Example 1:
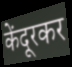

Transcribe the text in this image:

केंदूरकर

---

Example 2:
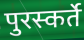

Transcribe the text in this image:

पुरस्कर्ते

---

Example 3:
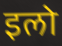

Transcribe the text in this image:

इलो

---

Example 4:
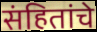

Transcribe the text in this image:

संहितांचे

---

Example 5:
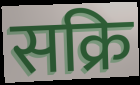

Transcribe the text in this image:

सक्रि